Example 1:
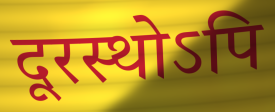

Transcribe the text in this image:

दूरस्थोऽपि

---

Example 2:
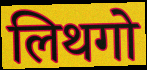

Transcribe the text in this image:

लिथगो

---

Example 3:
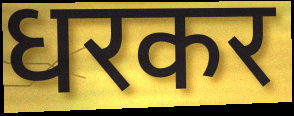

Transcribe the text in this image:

धरकर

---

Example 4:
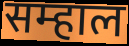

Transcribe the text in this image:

सम्हाल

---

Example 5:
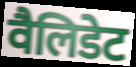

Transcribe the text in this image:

वैलिडेट